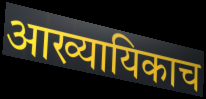
आख्यायिकाच